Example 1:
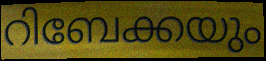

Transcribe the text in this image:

റിബേക്കയും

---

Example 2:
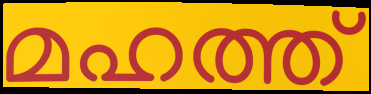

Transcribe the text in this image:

മഹത്ത്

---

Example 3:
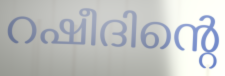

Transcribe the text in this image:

റഷീദിന്റെ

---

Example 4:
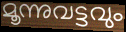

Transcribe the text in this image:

മൂന്നുവട്ടവും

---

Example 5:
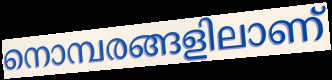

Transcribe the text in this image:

നൊമ്പരങ്ങളിലാണ്